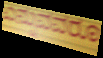
ಎನ್ನುವವರೂ